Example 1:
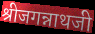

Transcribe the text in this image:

श्रीजगन्नाथजी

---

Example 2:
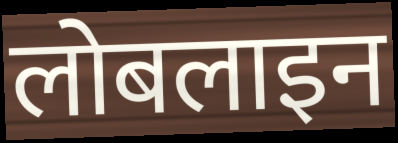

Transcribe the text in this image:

लोबलाइन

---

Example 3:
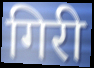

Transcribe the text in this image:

गिरी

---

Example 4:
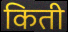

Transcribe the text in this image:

किती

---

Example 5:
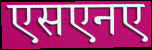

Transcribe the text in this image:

एसएनए